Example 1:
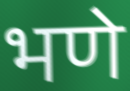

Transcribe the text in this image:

भणे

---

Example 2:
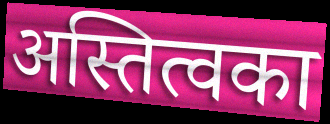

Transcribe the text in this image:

अस्तित्वका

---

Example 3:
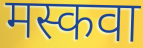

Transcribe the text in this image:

मस्कवा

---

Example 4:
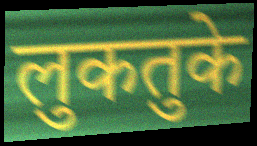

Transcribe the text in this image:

लुकतुके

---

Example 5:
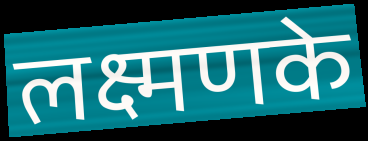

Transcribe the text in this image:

लक्ष्मणके